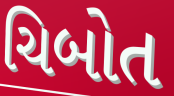
ચિબોત